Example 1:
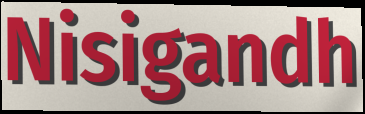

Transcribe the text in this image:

Nisigandh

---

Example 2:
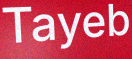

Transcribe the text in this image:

Tayeb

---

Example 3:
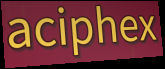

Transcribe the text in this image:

aciphex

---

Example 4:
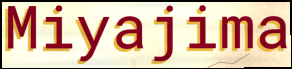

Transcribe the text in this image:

Miyajima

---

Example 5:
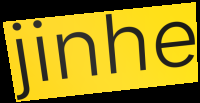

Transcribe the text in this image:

jinhe